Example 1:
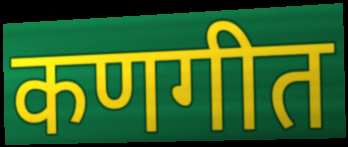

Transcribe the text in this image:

कणगीत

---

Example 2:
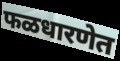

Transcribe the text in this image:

फळधारणेत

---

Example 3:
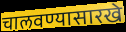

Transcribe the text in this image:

चालवण्यासारखे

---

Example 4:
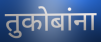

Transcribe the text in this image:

तुकोबांना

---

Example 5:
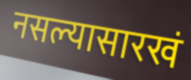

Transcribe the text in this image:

नसल्यासारखं